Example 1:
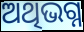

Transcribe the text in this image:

ଅଥିଭଗ୍ନ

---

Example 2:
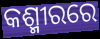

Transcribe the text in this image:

କଶ୍ମୀରରେ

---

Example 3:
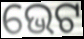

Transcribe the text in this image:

ଭେଟ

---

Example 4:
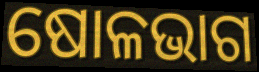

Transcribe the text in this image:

ଷୋଳଭାଗ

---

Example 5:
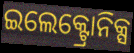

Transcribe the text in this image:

ଇଲେକ୍ଟ୍ରୋନିକ୍ସ